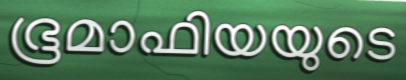
ഭൂമാഫിയയുടെ